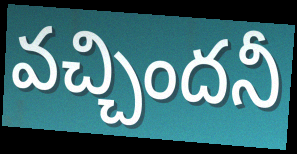
వచ్చిందనీ